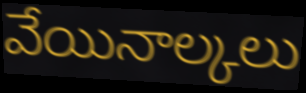
వేయినాల్కలు